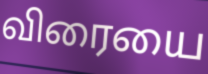
விரையை